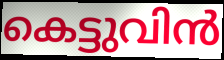
കെട്ടുവിൻ